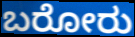
ಬರೋರು